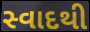
સ્વાદથી